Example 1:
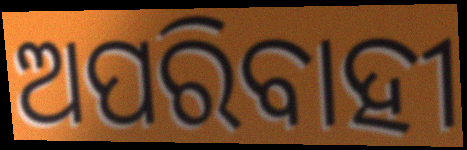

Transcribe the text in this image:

ଅପରିବାହୀ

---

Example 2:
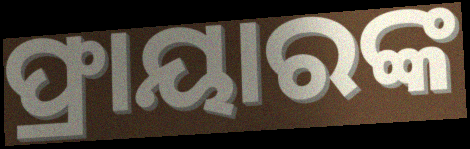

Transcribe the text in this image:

ଫ୍ରାୟାରଙ୍କ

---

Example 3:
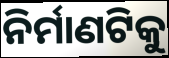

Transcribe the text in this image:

ନିର୍ମାଣଟିକୁ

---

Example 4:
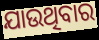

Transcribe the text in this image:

ଯାଉଥିବାର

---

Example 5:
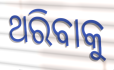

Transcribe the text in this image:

ଥରିବାକୁ